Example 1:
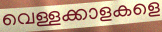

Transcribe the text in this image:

വെള്ളക്കാളകളെ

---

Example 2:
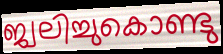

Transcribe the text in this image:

ജ്വലിച്ചുകൊണ്ടു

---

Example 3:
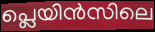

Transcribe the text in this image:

പ്ലെയിൻസിലെ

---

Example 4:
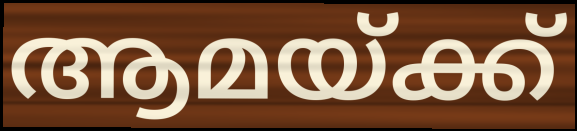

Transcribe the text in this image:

ആമയ്ക്ക്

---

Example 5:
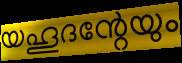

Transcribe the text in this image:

യഹൂദന്റേയും